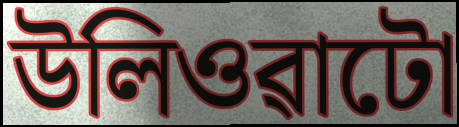
উলিওৱাটো